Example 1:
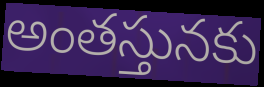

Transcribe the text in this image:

అంతస్తునకు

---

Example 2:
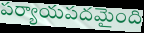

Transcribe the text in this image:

పర్యాయపదమైంది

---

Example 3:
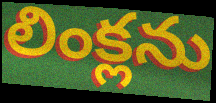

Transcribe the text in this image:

లింక్లను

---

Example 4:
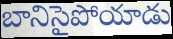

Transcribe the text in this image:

బానిసైపోయాడు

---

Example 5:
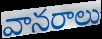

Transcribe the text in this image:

వానరాలు